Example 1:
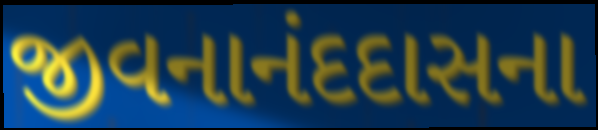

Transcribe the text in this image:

જીવનાનંદદાસના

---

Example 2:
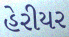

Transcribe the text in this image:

હેરીયર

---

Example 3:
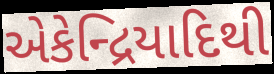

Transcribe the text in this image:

એકેન્દ્રિયાદિથી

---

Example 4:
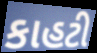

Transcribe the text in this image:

કાહટી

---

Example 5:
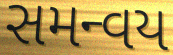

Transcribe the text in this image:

સમન્વય